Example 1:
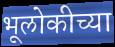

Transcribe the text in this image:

भूलोकीच्या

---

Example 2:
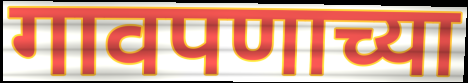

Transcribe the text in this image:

गावपणाच्या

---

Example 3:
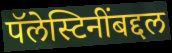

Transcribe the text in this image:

पॅलेस्टिनींबद्दल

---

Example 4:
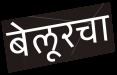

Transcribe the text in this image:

बेलूरचा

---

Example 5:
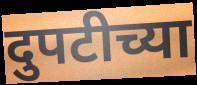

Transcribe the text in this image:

दुपटीच्या